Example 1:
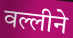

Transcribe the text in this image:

वल्लीने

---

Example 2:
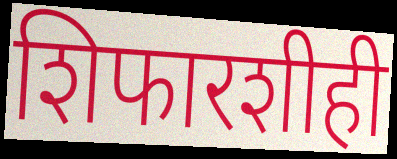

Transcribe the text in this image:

शिफारशीही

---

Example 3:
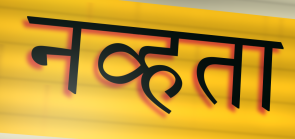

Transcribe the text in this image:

नव्हता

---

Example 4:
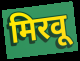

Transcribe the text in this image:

मिरवू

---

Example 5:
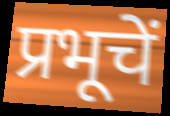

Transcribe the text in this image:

प्रभूचें